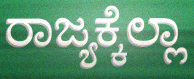
ರಾಜ್ಯಕ್ಕೆಲ್ಲಾ